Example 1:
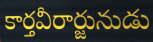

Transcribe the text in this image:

కార్తవీరార్జునుడు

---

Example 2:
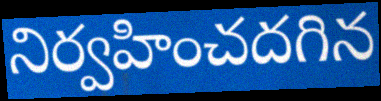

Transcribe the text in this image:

నిర్వహించదగిన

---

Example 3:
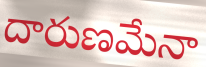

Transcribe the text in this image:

దారుణమేనా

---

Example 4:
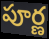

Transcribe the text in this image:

పూర్ణ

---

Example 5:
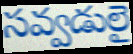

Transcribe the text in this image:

సవ్వడులై